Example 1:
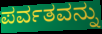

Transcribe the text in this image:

ಪರ್ವತವನ್ನು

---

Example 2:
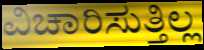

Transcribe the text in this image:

ವಿಚಾರಿಸುತ್ತಿಲ್ಲ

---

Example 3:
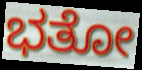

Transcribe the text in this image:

ಭತೋ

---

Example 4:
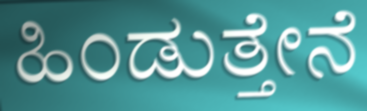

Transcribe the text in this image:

ಹಿಂಡುತ್ತೇನೆ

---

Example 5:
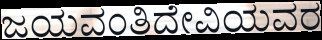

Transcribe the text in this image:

ಜಯವಂತಿದೇವಿಯವರ